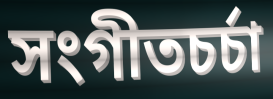
সংগীতচর্চা